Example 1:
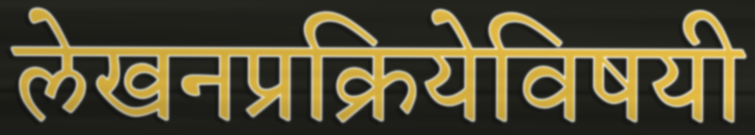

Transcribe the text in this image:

लेखनप्रक्रियेविषयी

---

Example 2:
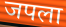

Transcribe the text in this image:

जपला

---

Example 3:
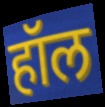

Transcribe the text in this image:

हॉल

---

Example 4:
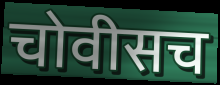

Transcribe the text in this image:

चोवीसच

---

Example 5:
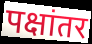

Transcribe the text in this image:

पक्षांतर